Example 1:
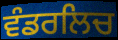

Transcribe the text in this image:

ਵੰਡਰਲਿਚ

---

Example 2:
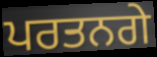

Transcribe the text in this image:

ਪਰਤਨਗੇ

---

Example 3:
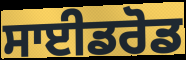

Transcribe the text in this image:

ਸਾਈਡਰੋਡ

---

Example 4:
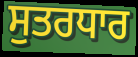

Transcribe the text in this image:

ਸੁਤਰਧਾਰ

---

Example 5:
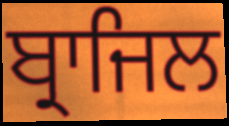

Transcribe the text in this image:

ਬ੍ਰਾਜਿਲ